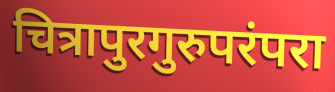
चित्रापुरगुरुपरंपरा